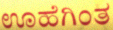
ಊಹೆಗಿಂತ